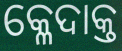
କ୍ଳେଦାକ୍ତ